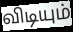
விடியும்